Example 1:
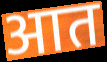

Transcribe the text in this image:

आत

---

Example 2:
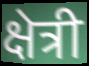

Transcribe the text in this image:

क्षेत्री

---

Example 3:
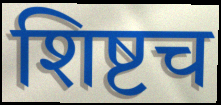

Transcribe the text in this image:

शिष्टच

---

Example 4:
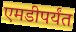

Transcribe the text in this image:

एमडीपर्यंत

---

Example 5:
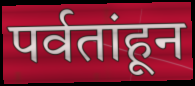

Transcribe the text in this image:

पर्वतांहून